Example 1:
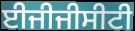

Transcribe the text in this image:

ਈਜੀਜੀਸੀਟੀ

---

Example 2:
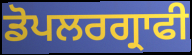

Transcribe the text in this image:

ਡੋਪਲਰਗ੍ਰਾਫੀ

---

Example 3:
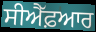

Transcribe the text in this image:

ਸੀਐੱਫ਼ਆਰ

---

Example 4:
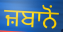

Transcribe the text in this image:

ਜ਼ਬਾਨੋਂ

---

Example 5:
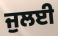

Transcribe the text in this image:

ਜੁਲਈ